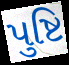
પુષ્ટિ